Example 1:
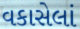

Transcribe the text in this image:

વકાસેલાં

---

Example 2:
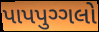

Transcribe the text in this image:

પાપપુગ્ગલો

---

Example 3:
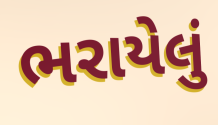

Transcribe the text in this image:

ભરાયેલું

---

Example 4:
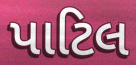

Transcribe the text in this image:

પાટિલ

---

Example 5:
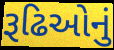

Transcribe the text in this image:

રૂઢિઓનું